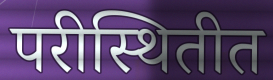
परीस्थितीत